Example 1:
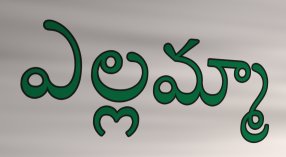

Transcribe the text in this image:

ఎల్లమ్మా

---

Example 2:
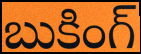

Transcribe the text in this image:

బుకింగ్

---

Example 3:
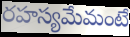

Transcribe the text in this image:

రహస్యమేమంటే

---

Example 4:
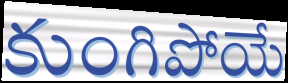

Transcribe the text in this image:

కుంగిపోయే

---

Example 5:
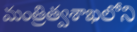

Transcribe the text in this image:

మంత్రిత్వశాఖలోని